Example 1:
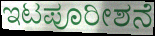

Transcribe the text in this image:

ಇಟಪೂರೀಶನೆ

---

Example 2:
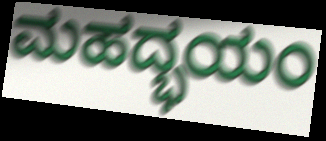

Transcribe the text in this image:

ಮಹದ್ಭಯಂ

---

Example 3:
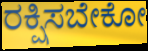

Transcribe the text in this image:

ರಕ್ಷಿಸಬೇಕೋ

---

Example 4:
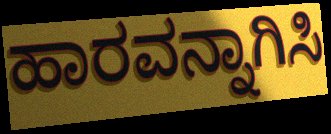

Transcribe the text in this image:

ಹಾರವನ್ನಾಗಿಸಿ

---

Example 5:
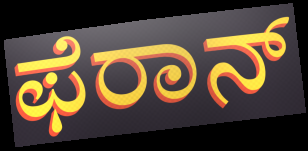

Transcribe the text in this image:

ಫೆರಾನ್